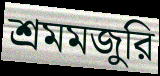
শ্রমমজুরি